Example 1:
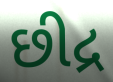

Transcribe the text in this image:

છીદ્ર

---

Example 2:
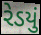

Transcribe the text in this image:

રેડયું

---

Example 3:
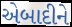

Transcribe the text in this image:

એબાદીને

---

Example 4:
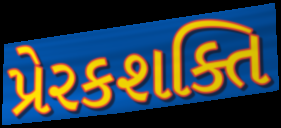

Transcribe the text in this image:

પ્રેરકશક્તિ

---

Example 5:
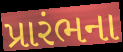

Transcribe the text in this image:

પ્રારંભના